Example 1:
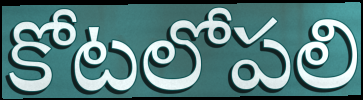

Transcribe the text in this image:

కోటలోపలి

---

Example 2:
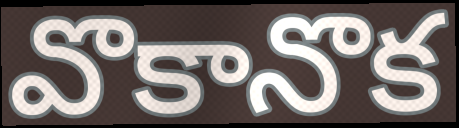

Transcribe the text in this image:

వొకానొక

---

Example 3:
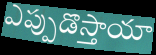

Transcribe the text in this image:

ఎప్పుడొస్తాయా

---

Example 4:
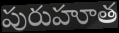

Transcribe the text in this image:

పురుహూత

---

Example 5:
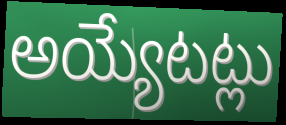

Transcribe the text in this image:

అయ్యేటట్లు